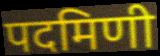
पदमिणी